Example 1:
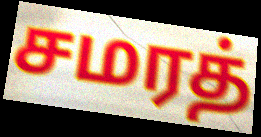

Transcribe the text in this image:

சமரத்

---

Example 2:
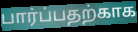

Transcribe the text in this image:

பார்ப்பதற்காக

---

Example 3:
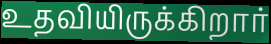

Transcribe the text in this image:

உதவியிருக்கிறார்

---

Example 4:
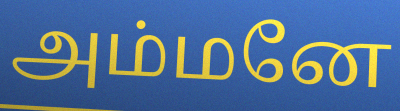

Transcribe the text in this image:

அம்மனே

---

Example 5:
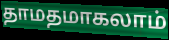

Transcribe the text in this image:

தாமதமாகலாம்